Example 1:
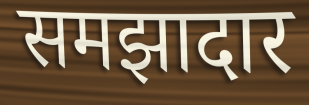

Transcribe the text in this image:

समझादार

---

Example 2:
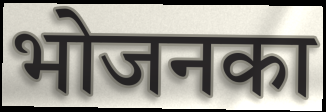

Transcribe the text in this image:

भोजनका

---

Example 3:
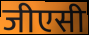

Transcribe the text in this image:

जीएसी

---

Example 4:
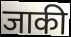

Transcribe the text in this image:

जाकी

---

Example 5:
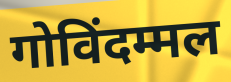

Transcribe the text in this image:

गोविंदम्मल